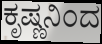
ಕೃಷ್ಣನಿಂದ